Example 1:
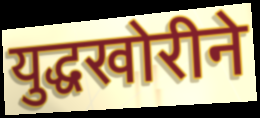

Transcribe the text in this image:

युद्धखोरीने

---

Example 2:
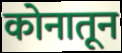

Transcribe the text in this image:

कोनातून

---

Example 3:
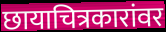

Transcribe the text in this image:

छायाचित्रकारांवर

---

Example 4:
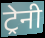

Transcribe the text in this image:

ट्रेनी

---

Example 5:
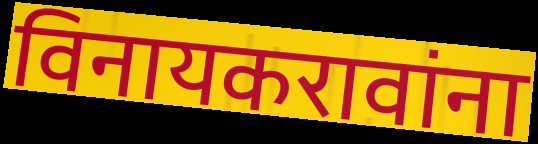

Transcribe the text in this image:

विनायकरावांना